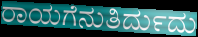
ರಾಯಗೆನುತಿರ್ದುದು